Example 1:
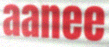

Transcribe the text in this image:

aanee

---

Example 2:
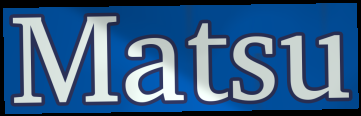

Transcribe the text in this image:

Matsu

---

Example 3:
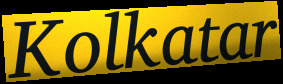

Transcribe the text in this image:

Kolkatar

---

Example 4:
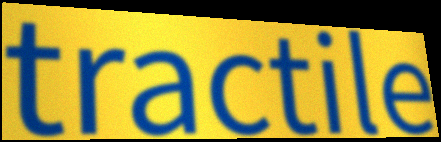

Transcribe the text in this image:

tractile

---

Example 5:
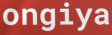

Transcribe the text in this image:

ongiya